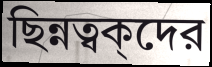
ছিন্নত্বক্দের